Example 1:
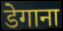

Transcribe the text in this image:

डेगाना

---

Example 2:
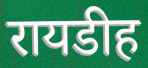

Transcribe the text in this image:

रायडीह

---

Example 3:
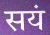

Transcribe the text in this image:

सयं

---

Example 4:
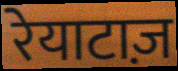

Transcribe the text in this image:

रेयाटाज़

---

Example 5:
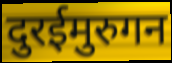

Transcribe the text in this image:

दुरईमुरुगन